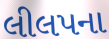
લીલપના